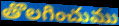
తొలగించుము